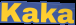
Kaka